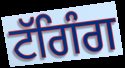
ਟੱਗਿੰਗ